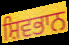
ਸ਼ਿਵਭਾਨ